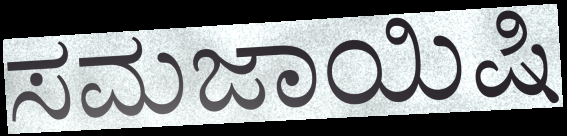
ಸಮಜಾಯಿಷಿ